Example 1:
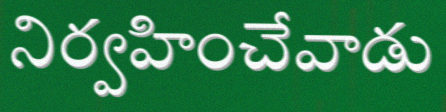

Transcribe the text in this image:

నిర్వహించేవాడు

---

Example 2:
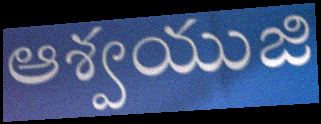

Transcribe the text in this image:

ఆశ్వయుజి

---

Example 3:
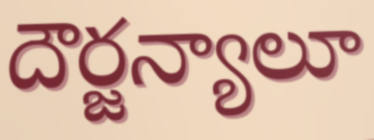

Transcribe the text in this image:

దౌర్జన్యాలూ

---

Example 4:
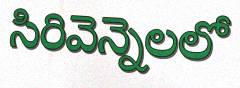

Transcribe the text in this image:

సిరివెన్నెలలో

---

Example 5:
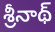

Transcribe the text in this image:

శ్రీనాథ్